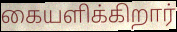
கையளிக்கிறார்